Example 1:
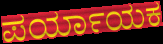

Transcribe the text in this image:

ಪರ್ಯಾಯಕ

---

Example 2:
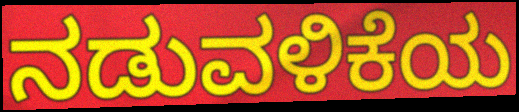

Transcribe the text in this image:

ನಡುವಳಿಕೆಯ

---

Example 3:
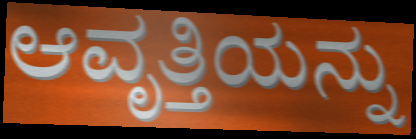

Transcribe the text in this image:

ಆವೃತ್ತಿಯನ್ನು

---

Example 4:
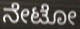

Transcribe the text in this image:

ನೇಟೋ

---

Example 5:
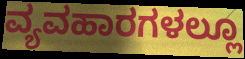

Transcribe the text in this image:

ವ್ಯವಹಾರಗಳಲ್ಲೂ